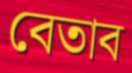
বেতাব